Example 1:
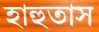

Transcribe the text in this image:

হাহুতাস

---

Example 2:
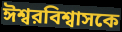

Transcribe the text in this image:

ঈশ্বরবিশ্বাসকে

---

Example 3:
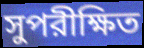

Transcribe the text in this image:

সুপরীক্ষিত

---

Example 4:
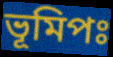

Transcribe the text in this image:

ভূমিপঃ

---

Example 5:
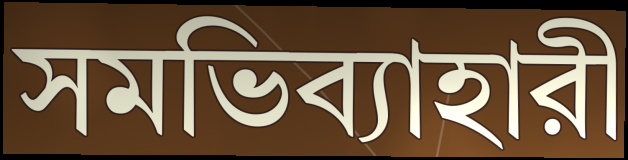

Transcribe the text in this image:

সমভিব্যাহারী